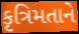
કૃત્રિમતાને